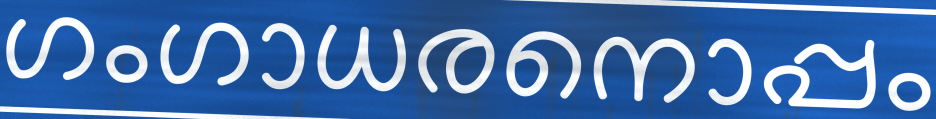
ഗംഗാധരനൊപ്പം